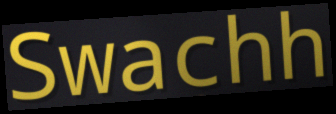
Swachh